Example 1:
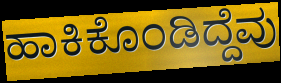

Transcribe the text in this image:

ಹಾಕಿಕೊಂಡಿದ್ದೆವು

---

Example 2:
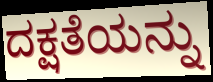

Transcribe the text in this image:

ದಕ್ಷತೆಯನ್ನು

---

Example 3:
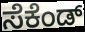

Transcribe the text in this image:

ಸೆಕೆಂಡ್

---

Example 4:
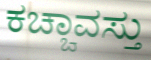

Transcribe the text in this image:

ಕಚ್ಚಾವಸ್ತು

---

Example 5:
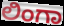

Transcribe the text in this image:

ಲಿಂಗಾ